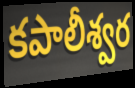
కపాలీశ్వర